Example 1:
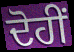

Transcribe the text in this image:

ਦੋਹੀਂ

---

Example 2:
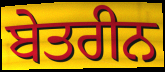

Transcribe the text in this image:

ਬੇਤਰੀਨ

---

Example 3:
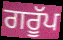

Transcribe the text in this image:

ਗਰੂੱਪ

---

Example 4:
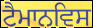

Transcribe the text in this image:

ਟੈਮਾਨਵਿਸ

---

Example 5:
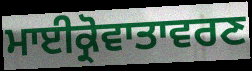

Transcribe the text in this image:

ਮਾਈਕ੍ਰੋਵਾਤਾਵਰਣ